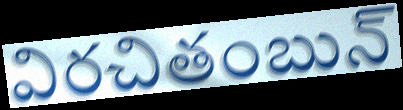
విరచితంబున్